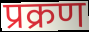
प्रक्रण